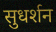
सुधर्शन